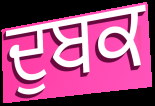
ਦੁਬਕ